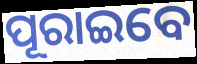
ପୂରାଇବେ